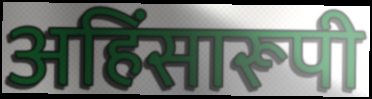
अहिंसारूपी